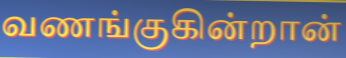
வணங்குகின்றான்